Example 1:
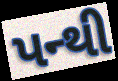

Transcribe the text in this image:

પન્થી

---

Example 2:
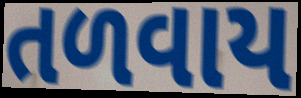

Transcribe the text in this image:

તળવાય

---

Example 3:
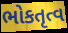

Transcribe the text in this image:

ભોકતૃત્વ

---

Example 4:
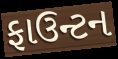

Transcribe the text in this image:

ફાઉન્ટન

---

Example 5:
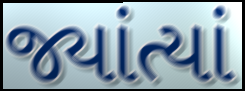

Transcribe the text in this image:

જ્યાંત્યાં